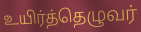
உயிர்த்தெழுவர்